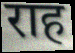
राह